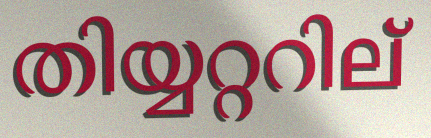
തിയ്യറ്ററില്